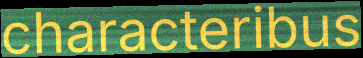
characteribus